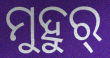
ମୁହୁର୍